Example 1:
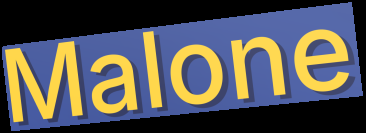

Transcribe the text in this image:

Malone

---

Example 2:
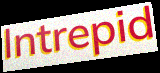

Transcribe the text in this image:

Intrepid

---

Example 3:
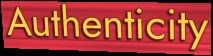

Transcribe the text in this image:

Authenticity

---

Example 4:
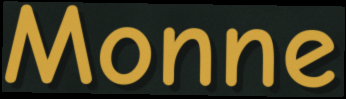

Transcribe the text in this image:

Monne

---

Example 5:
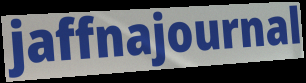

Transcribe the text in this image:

jaffnajournal